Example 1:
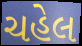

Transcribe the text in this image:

ચહેલ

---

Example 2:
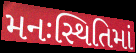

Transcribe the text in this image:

મનઃસ્થિતિમાં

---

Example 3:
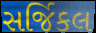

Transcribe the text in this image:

સર્જિકલ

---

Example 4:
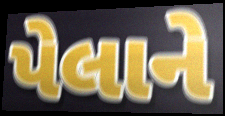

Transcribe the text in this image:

પેલાને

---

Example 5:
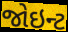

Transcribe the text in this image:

જોઇન્ટ